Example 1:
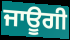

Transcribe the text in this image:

ਜਾਊਗੀ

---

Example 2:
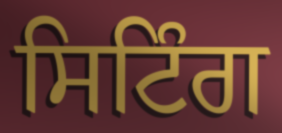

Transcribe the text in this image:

ਸਿਟਿੰਗ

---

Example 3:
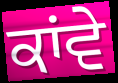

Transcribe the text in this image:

ਕਾਂਵੇ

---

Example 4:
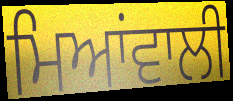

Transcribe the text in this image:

ਮਿਆਂਵਾਲੀ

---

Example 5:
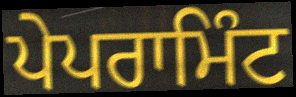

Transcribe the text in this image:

ਪੇਪਰਾਮਿੰਟ